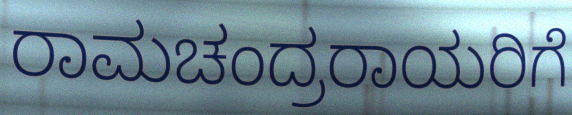
ರಾಮಚಂದ್ರರಾಯರಿಗೆ